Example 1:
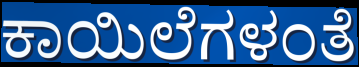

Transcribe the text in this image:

ಕಾಯಿಲೆಗಳಂತೆ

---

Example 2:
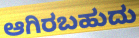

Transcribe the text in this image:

ಆಗಿರಬಹುದು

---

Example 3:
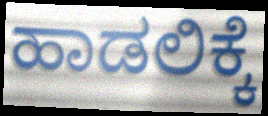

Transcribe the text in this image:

ಹಾಡಲಿಕ್ಕೆ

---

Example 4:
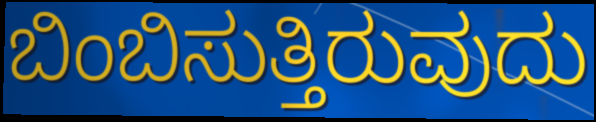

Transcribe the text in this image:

ಬಿಂಬಿಸುತ್ತಿರುವುದು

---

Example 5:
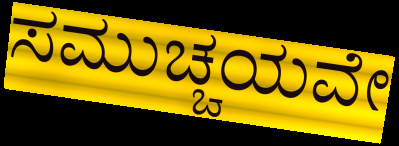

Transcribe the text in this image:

ಸಮುಚ್ಚಯವೇ